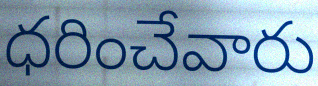
ధరించేవారు